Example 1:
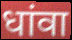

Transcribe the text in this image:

धांवा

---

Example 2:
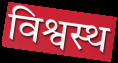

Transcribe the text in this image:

विश्वस्थ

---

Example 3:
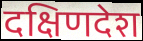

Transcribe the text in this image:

दक्षिणदेश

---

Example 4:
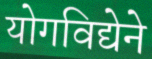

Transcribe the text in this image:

योगविद्येने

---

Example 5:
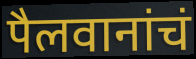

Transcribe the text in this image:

पैलवानांचं